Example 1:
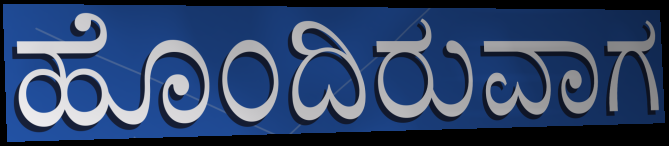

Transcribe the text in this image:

ಹೊಂದಿರುವಾಗ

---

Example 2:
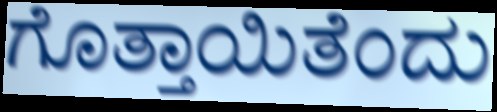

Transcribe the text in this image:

ಗೊತ್ತಾಯಿತೆಂದು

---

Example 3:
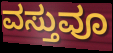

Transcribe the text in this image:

ವಸ್ತುವೂ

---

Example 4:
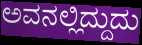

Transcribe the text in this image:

ಅವನಲ್ಲಿದ್ದುದು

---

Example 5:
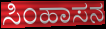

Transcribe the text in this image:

ಸಿಂಹಾಸನ